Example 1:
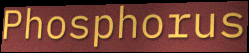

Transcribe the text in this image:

Phosphorus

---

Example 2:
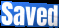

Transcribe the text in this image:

Saved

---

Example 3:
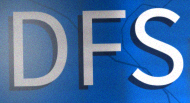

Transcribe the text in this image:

DFS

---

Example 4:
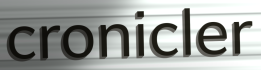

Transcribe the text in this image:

cronicler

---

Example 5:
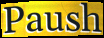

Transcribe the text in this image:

Paush